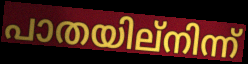
പാതയില്നിന്ന്